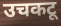
उचकटू